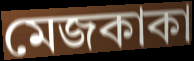
মেজকাকা